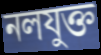
নলযুক্ত